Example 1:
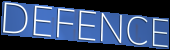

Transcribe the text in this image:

DEFENCE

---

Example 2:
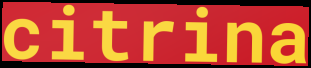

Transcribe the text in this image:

citrina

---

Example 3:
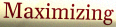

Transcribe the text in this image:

Maximizing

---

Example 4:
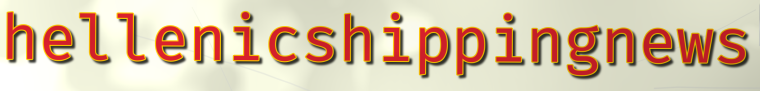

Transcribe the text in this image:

hellenicshippingnews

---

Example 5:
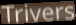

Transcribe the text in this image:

Trivers